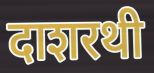
दाशरथी